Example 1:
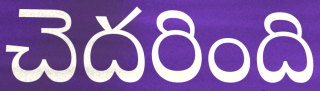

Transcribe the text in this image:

చెదరింది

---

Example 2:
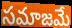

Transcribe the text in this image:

సమాజమే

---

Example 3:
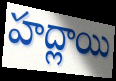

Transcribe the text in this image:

హద్లాయి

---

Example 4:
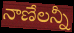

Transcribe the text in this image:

నాణేలన్నీ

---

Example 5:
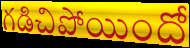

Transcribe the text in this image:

గడిచిపోయిందో